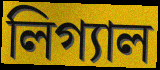
লিগ্যাল